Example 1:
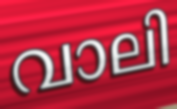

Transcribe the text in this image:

വാലി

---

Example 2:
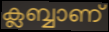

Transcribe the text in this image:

ക്ലബ്ബാണ്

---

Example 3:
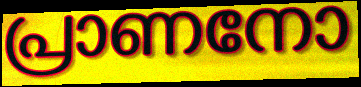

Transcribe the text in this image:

പ്രാണനോ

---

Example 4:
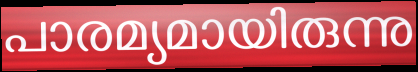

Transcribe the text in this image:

പാരമ്യമായിരുന്നു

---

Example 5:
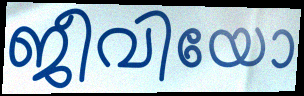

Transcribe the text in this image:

ജീവിയോ